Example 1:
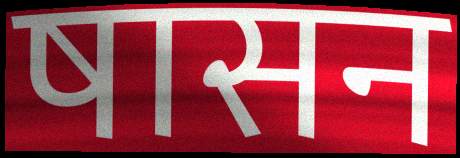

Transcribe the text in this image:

षासन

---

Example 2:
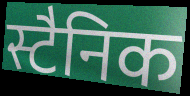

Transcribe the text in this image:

स्टैनिक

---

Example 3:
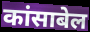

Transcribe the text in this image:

कांसाबेल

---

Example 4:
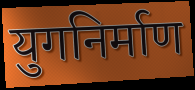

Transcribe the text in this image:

युगनिर्माण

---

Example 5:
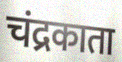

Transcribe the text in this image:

चंद्रकाता